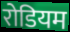
रोडियम